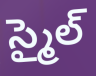
స్మైల్